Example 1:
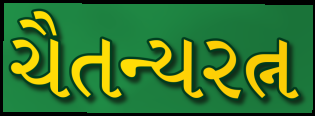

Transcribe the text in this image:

ચૈતન્યરત્ન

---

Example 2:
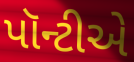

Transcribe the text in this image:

પૉન્ટીએ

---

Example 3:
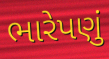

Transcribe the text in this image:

ભારેપણું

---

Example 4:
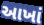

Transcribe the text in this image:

આખાં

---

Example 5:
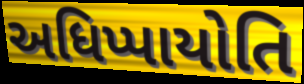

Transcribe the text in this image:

અધિપ્પાયોતિ